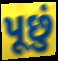
પૂછું